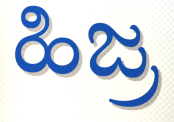
ಹಿಜ್ರ